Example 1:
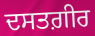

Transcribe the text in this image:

ਦਸਤਗ਼ੀਰ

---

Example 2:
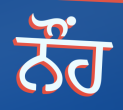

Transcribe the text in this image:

ਨੌੰਹ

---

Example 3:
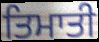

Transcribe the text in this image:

ਤਿਮਾਤੀ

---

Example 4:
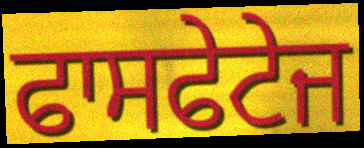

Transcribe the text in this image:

ਫਾਸਫੇਟੇਜ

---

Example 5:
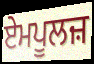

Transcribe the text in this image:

ਏਮਪੂਲਜ਼